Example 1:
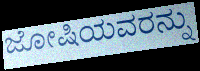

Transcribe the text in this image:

ಜೋಷಿಯವರನ್ನು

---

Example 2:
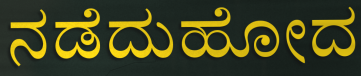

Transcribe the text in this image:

ನಡೆದುಹೋದ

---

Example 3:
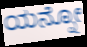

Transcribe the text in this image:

ಯನ್ನೋ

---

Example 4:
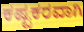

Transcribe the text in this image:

ಕಷ್ಟಕರವಾಗಿ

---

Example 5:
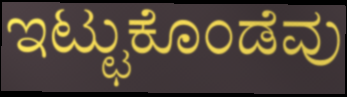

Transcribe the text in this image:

ಇಟ್ಟುಕೊಂಡೆವು